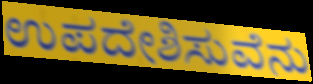
ಉಪದೇಶಿಸುವೆನು